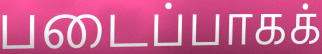
படைப்பாகக்